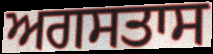
ਅਗਸਤਾਸ